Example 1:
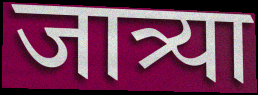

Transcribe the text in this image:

जात्र्या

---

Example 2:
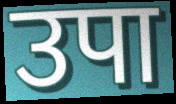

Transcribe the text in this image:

उपा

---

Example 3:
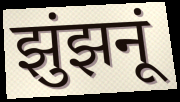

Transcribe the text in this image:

झुंझनूं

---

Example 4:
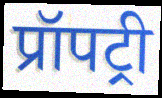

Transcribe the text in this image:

प्रॉपट्री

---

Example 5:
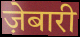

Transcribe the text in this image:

ज़ेबारी